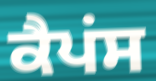
ਕੈਪਂਸ